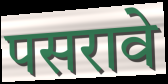
पसरावे